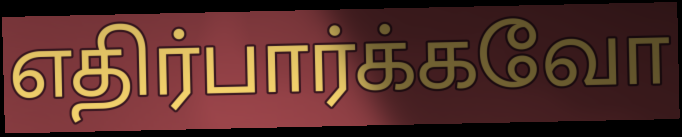
எதிர்பார்க்கவோ